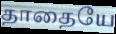
தாதையே